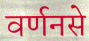
वर्णनसे